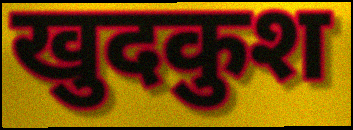
खुदकुश